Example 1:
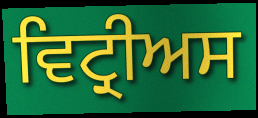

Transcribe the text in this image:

ਵਿਟ੍ਰੀਅਸ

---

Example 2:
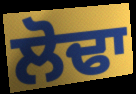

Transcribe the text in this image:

ਲੋਢਾ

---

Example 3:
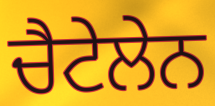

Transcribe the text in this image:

ਚੈਟੇਲੇਨ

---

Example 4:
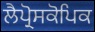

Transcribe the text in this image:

ਲੈਪ੍ਰੋਸਕੋਪਿਕ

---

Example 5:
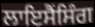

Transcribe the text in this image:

ਲਾਇਸੈਂਸਿੰਗ